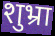
शुभ्रा